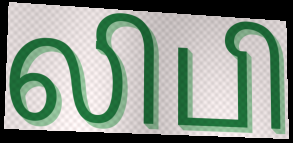
லிபி